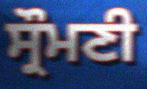
ਸ੍ਰੌਮਣੀ